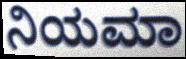
ನಿಯಮಾ